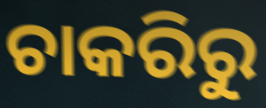
ଚାକରିରୁ